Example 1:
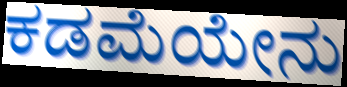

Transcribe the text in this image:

ಕಡಮೆಯೇನು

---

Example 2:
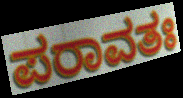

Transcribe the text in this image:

ಪರಾವತಃ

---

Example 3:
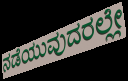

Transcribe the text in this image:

ನಡೆಯುವುದರಲ್ಲೇ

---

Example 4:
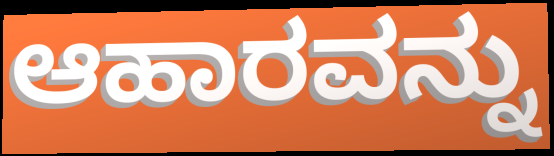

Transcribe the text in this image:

ಆಹಾರವನ್ನು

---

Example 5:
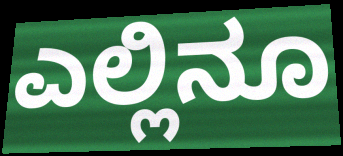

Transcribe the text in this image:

ಎಲ್ಲಿನೂ